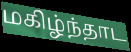
மகிழ்ந்தாட